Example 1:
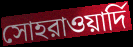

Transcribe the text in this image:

সোহরাওয়ার্দি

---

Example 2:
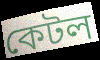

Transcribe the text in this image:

কেটল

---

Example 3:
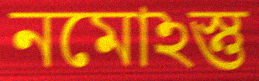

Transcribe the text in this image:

নমোঽস্তু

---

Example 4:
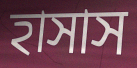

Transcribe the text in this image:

হাসাস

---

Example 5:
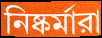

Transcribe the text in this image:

নিষ্কর্মারা